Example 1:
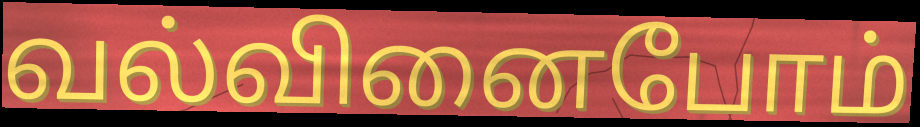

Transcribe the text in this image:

வல்வினைபோம்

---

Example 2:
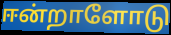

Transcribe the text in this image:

ஈன்றாளோடு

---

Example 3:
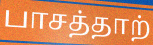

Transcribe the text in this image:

பாசத்தாற்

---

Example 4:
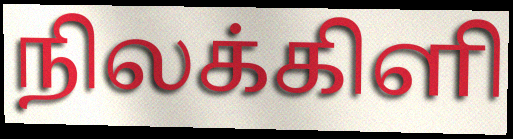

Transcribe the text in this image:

நிலக்கிளி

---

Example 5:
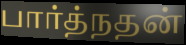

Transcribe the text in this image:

பார்த்நதன்